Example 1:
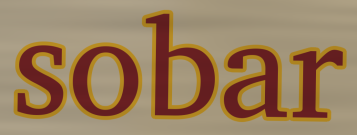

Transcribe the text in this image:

sobar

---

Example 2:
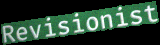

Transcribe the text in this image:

Revisionist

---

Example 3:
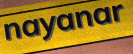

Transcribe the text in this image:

nayanar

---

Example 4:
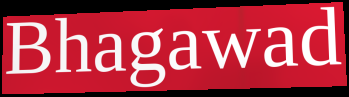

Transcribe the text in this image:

Bhagawad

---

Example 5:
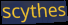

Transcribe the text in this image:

scythes